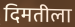
दिमतीला